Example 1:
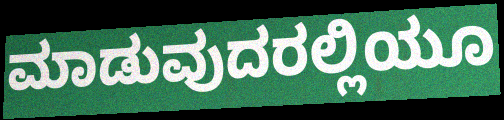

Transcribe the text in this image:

ಮಾಡುವುದರಲ್ಲಿಯೂ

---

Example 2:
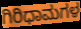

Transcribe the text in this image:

ಗಿರಿಧಾಮಗಳ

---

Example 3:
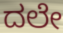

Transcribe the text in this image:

ದಲೇ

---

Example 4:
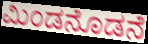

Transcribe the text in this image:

ಮಿಂಡನೊಡನೆ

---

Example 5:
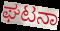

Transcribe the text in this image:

ಘಟನಾ